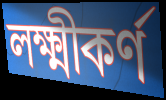
লক্ষ্মীকর্ণ